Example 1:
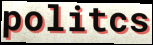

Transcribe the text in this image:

politcs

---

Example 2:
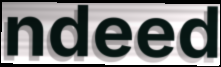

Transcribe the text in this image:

ndeed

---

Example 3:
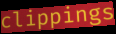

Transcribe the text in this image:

clippings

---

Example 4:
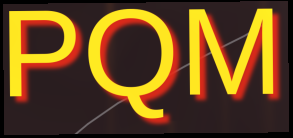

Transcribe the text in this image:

PQM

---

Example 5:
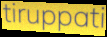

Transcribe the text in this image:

tiruppati